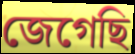
জেগেছি